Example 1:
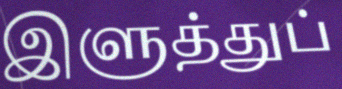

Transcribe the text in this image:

இளுத்துப்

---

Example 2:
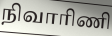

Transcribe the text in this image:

நிவாரிணி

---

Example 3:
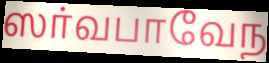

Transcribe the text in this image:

ஸர்வபாவேந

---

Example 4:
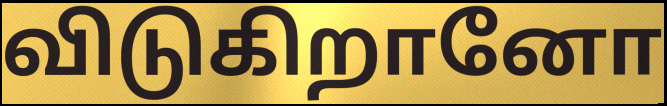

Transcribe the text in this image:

விடுகிறானோ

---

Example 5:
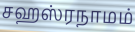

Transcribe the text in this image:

சஹஸ்ரநாமம்